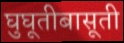
घुघूतीबासूती